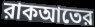
রাকআতের